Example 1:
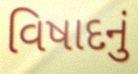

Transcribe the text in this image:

વિષાદનું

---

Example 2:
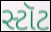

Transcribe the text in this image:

સ્ટૉટ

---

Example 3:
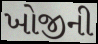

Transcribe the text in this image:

ખોજીની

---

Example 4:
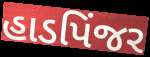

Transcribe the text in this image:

હાડપિંજર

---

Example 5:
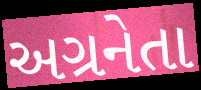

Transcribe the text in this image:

અગ્રનેતા